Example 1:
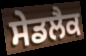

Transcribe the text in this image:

ਸੇਡਲੈਕ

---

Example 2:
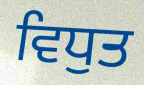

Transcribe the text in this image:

ਵਿਧੁਤ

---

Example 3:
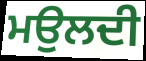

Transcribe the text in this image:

ਮਉਲਦੀ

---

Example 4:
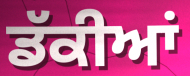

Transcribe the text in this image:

ਡੱਕੀਆਂ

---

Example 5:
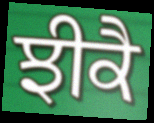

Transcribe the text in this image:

ਝੀਕੈ